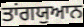
ਤਾਂਗਯੁਆਨ